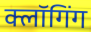
क्लॉगिंग